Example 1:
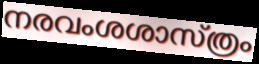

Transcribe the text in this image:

നരവംശശാസ്‌ത്രം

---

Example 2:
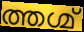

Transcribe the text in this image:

ത്തഗ്മ്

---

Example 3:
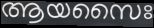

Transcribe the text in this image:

ആയസൈഃ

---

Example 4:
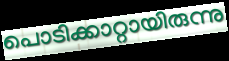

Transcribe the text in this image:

പൊടിക്കാറ്റായിരുന്നു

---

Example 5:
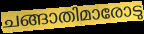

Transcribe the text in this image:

ചങ്ങാതിമാരോടു